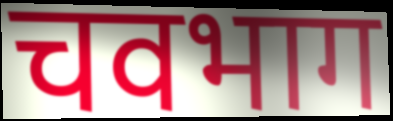
चवभाग